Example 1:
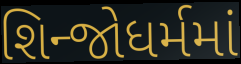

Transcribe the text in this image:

શિન્જોધર્મમાં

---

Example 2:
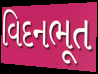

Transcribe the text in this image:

વિદનભૂત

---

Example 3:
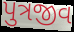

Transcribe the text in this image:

પુત્રજીવ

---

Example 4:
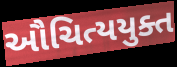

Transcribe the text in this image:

ઔચિત્યયુક્ત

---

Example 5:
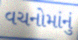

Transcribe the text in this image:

વચનોમાંનું